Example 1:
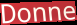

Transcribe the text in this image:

Donne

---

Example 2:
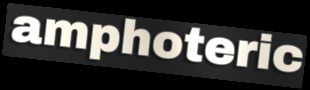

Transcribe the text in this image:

amphoteric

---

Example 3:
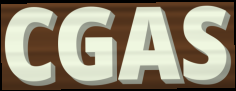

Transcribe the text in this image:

CGAS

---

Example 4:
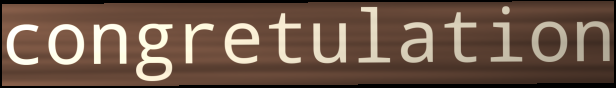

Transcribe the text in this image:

congretulation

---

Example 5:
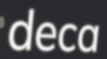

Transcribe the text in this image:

deca